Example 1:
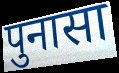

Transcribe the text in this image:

पुनासा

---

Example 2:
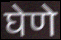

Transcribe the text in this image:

घेणे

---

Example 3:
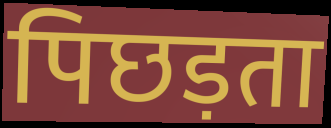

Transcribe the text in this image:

पिछड़ता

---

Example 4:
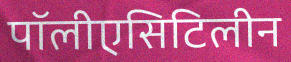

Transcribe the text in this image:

पॉलीएसिटिलीन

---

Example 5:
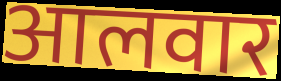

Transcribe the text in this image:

आलवार